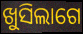
ଖୁସିଲାଗେ